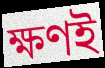
ক্ষণই